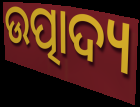
ଉତ୍ପାଦ୍ୟ